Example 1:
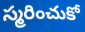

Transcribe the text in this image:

స్మరించుకో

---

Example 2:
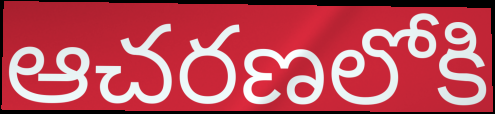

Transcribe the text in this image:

ఆచరణలోకి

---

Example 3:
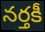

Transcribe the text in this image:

నర్తకీ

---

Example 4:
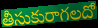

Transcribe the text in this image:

తీసుకురాగలదో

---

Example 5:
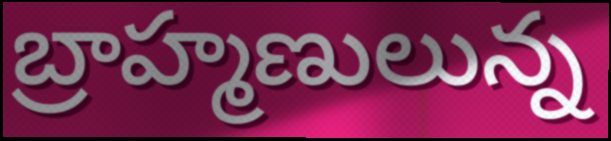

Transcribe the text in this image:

బ్రాహ్మణులున్న